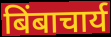
बिंबाचार्य